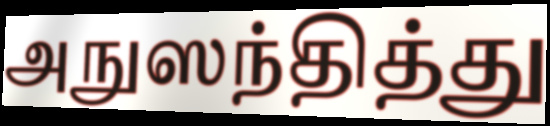
அநுஸந்தித்து